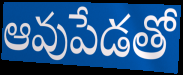
ఆవుపేడతో